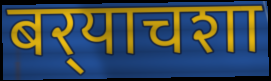
बर्‍याचशा